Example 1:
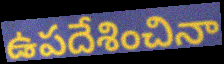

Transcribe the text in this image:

ఉపదేశించినా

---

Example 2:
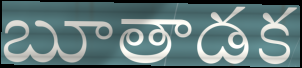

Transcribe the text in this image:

బూతాడక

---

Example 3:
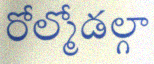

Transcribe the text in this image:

రోల్మోడల్గా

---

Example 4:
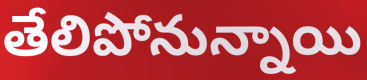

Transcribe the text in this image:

తేలిపోనున్నాయి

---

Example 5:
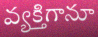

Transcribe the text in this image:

వ్యక్తిగానూ